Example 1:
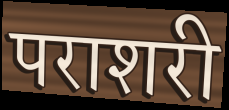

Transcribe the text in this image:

पराशरी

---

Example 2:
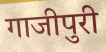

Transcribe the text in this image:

गाजीपुरी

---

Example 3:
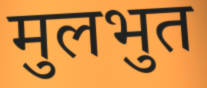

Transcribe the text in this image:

मुलभुत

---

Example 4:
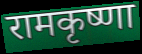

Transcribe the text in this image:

रामकृष्णा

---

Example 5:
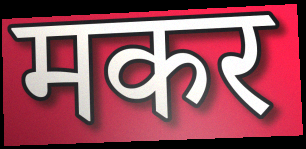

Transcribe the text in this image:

मकर